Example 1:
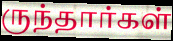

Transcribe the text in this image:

ருந்தார்கள்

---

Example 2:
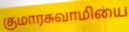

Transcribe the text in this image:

குமாரசுவாமியை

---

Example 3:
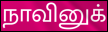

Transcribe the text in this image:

நாவினுக்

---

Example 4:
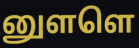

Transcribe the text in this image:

னுளளெ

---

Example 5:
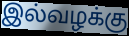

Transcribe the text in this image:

இல்வழக்கு